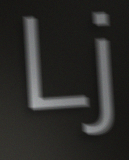
Lj